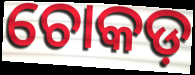
ଚୋକଡ଼